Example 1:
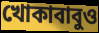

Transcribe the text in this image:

খোকাবাবুও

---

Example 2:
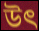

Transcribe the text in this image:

উৎ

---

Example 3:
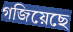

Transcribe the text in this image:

গজিয়েছে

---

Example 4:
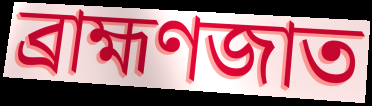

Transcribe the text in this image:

ব্রাহ্মণজাত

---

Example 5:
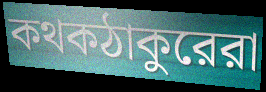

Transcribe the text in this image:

কথকঠাকুরেরা